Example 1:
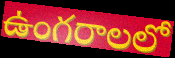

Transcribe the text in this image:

ఉంగరాలలో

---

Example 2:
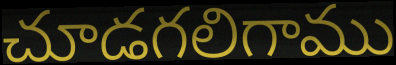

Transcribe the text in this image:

చూడగలిగాము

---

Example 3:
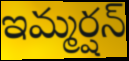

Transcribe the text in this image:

ఇమ్మర్షన్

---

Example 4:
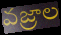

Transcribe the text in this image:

వజ్రాల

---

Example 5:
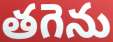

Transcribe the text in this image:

తగెను